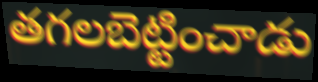
తగలబెట్టించాడు